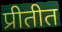
प्रीतीत